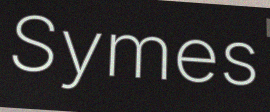
Symes